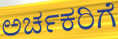
ಅರ್ಚಕರಿಗೆ